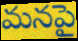
మనపై